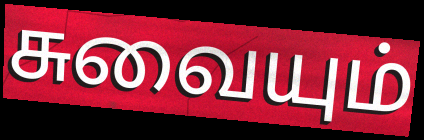
சுவையும்